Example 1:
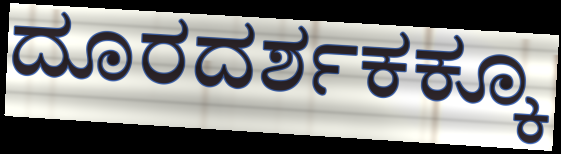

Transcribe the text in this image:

ದೂರದರ್ಶಕಕ್ಕೂ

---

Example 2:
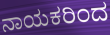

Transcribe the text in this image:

ನಾಯಕರಿಂದ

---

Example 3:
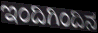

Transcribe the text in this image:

ಇಂದಿಗಿಂದಿನ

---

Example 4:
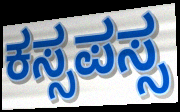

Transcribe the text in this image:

ಕಸ್ಸಪಸ್ಸ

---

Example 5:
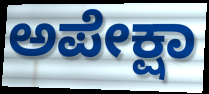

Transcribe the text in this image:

ಅಪೇಕ್ಷಾ